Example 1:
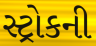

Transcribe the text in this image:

સ્ટ્રોકની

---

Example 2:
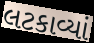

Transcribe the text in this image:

લટકાવ્યાં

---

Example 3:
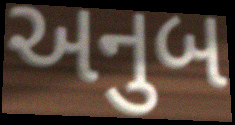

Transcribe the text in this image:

અનુબ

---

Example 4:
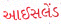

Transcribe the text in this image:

આઈસલેંડ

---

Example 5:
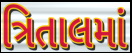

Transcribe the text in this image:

ત્રિતાલમાં